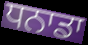
ਧਨਾਡਾ